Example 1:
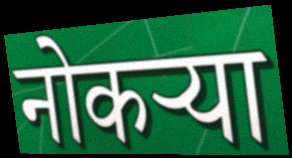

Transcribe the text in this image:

नोकऱ्या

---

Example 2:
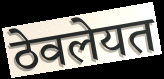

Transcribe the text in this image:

ठेवलेयत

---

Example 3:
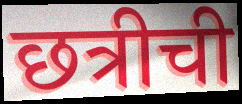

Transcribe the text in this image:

छत्रीची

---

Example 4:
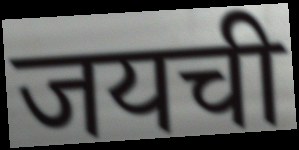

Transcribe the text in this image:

जयची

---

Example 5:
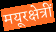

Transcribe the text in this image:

मयूरक्षेत्रीं